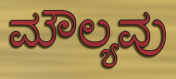
ಮೌಲ್ಯವು